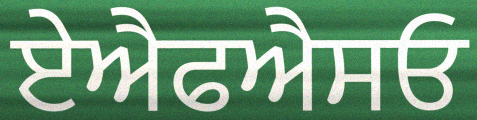
ਏਐਫਐਸਓ